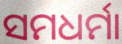
ସମଧର୍ମା